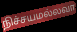
நிச்சயமல்லவா